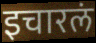
इचारलं